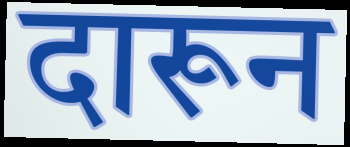
दारून